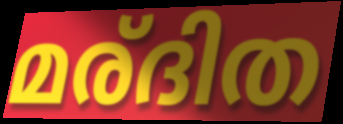
മര്ദിത